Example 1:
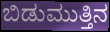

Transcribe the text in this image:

ಬಿಡುಮುತ್ತಿನ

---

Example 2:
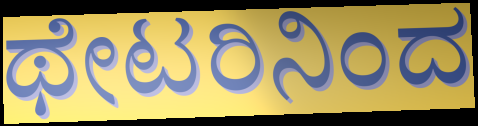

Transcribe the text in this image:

ಥೇಟರಿನಿಂದ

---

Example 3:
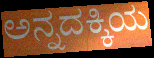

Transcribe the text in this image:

ಅನ್ನದಕ್ಕಿಯ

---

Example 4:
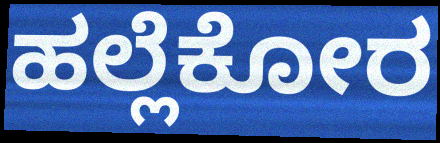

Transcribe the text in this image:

ಹಲ್ಲೆಕೋರ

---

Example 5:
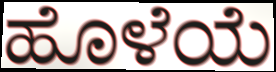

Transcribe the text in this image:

ಹೊಳೆಯೆ